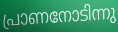
പ്രാണനോടിന്നു